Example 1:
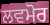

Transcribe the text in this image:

ਲਵਮੋਰ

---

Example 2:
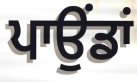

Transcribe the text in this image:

ਪਾਉਂਡਾਂ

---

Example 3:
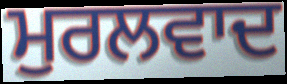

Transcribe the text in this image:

ਮੁਰਲਵਾਦ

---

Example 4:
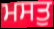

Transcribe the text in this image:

ਮਸਤੁ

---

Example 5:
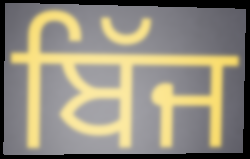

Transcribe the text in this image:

ਬਿੱਜ